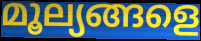
മൂല്യങ്ങളെ